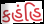
કહંહિ